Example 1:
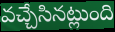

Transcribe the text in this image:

వచ్చేసినట్లుంది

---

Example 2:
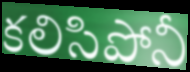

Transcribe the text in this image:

కలిసిపోనీ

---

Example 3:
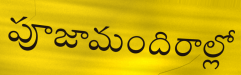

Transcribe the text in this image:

పూజామందిరాల్లో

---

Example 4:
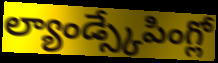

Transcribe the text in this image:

ల్యాండ్స్కేపింగ్లో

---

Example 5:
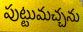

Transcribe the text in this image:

పుట్టుమచ్చను